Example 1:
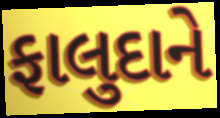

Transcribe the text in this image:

ફાલુદાને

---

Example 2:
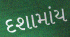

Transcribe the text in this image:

દશામાંય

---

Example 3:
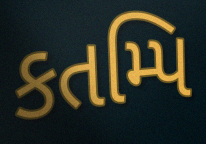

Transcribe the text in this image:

કતમ્પિ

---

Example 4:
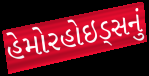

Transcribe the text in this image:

હેમોરહોઇડ્સનું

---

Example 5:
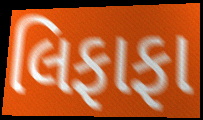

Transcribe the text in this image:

લિફાફા